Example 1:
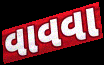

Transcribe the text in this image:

વાવવા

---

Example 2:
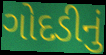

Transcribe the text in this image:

ગોદડીનું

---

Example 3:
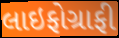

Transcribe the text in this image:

લાઇફોગ્રાફી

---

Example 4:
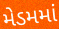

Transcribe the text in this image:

મેડમમાં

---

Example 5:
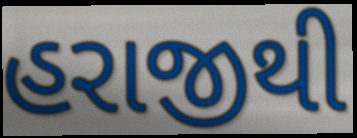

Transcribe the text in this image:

હરાજીથી